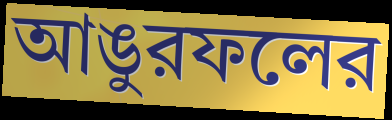
আঙুরফলের